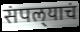
संपल्याचं